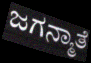
ಜಗನ್ಮಾತೆ